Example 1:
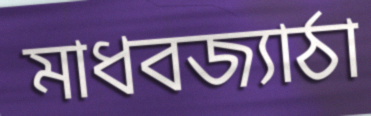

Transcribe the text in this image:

মাধবজ্যাঠা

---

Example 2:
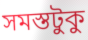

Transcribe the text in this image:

সমস্তটুকু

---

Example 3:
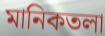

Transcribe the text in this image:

মানিকতলা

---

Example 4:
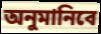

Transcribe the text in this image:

অনুমানিবে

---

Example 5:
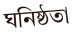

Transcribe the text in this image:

ঘনিষ্ঠতা